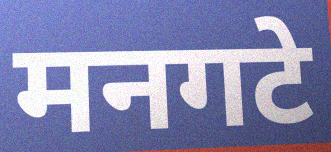
मनगटे